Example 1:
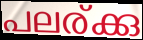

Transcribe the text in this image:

പലര്ക്കു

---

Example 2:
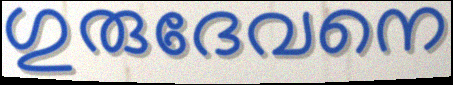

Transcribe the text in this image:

ഗുരുദേവനെ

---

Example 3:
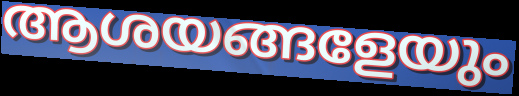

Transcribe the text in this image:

ആശയങ്ങളേയും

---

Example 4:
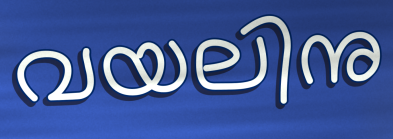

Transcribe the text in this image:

വയലിനു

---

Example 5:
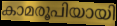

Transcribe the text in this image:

കാമരൂപിയായി